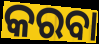
କରବା